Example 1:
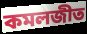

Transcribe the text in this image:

কমলজীত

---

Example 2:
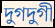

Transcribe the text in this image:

দুগদুগী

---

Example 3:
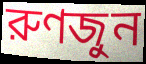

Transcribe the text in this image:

ৰুণজুন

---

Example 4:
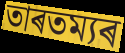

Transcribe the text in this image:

তাৰতম্যৰ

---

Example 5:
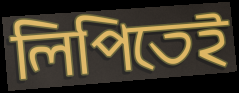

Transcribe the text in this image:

লিপিতেই